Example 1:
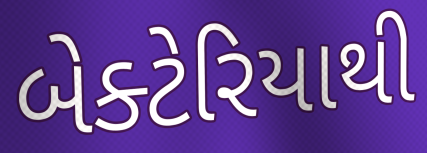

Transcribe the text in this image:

બેક્ટેરિયાથી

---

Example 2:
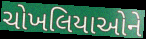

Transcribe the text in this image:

ચોખલિયાઓને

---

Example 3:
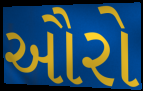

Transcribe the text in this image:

ઔરો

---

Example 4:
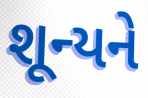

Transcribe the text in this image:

શૂન્યને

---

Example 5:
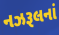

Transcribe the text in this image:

નઝરૂલનાં